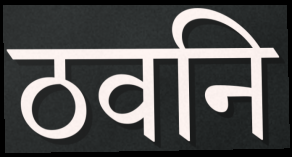
ठवनि